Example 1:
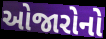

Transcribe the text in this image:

ઓજારોનો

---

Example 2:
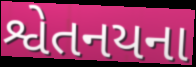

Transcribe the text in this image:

શ્વેતનયના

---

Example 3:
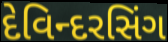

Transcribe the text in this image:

દેવિન્દરસિંગ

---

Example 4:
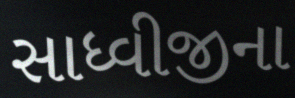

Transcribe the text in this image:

સાધ્વીજીના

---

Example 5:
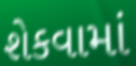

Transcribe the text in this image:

શેકવામાં